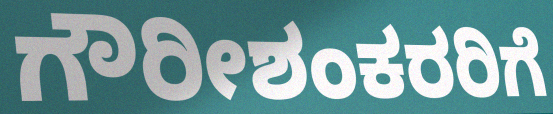
ಗೌರೀಶಂಕರರಿಗೆ